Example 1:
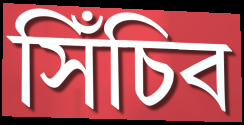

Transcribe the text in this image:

সিঁচিব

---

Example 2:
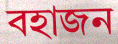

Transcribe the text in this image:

বহাজন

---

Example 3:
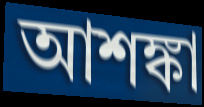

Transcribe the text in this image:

আশঙ্কা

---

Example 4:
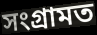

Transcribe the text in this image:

সংগ্ৰামত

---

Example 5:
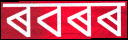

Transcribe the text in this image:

ৰবৰৰ